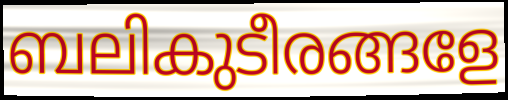
ബലികുടീരങ്ങളേ